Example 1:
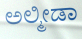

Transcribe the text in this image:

ಅಲ್ಮೀಡಾ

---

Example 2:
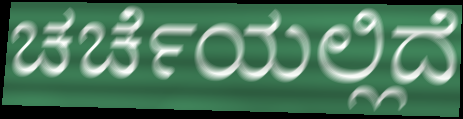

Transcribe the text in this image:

ಚರ್ಚೆಯಲ್ಲಿದೆ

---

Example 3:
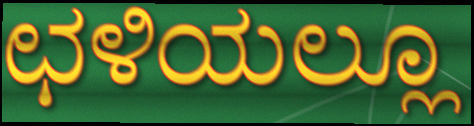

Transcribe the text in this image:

ಛಳಿಯಲ್ಲೂ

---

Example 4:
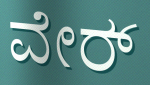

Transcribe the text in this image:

ವೇರ್‍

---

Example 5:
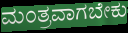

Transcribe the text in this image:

ಮಂತ್ರವಾಗಬೇಕು